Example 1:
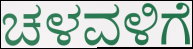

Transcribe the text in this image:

ಚಳವಳಿಗೆ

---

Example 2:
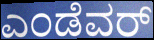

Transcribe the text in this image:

ಎಂಡೆವರ್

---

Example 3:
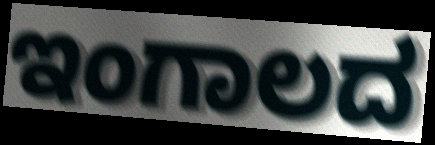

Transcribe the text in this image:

ಇಂಗಾಲದ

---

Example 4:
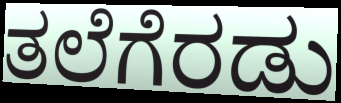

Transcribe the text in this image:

ತಲೆಗೆರಡು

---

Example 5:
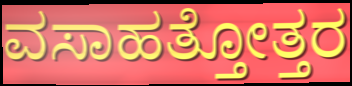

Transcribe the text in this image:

ವಸಾಹತ್ತೋತ್ತರ